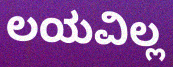
ಲಯವಿಲ್ಲ